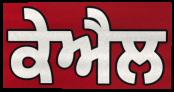
ਕੇਐਲ